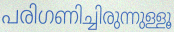
പരിഗണിച്ചിരുന്നുള്ളൂ